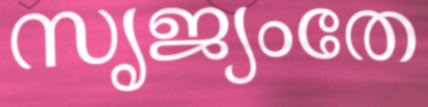
സൃജ്യംതേ